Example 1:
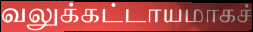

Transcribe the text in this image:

வலுக்கட்டாயமாகச்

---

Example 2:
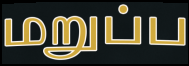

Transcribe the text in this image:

மறுப்ப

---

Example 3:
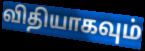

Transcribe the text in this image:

விதியாகவும்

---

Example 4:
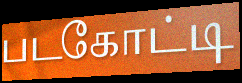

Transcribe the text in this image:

படகோட்டி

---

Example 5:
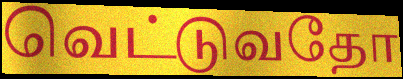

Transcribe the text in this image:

வெட்டுவதோ